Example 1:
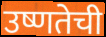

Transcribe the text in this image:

उष्णतेची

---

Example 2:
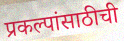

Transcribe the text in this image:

प्रकल्पांसाठीची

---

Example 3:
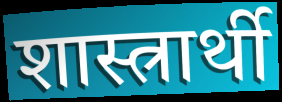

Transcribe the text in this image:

शास्त्रार्थी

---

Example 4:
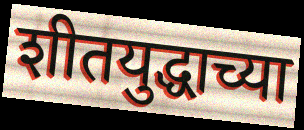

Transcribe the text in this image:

शीतयुद्धाच्या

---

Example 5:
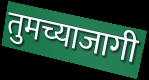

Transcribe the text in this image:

तुमच्याजागी